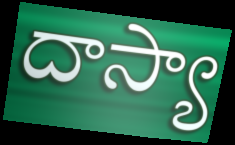
దాస్యా